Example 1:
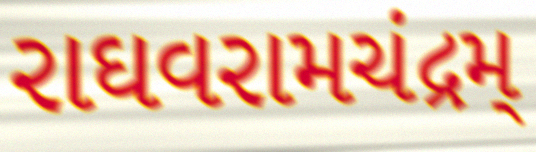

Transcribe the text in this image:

રાઘવરામચંદ્રમ્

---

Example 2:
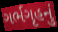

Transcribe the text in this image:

ગર્ભગૃહનું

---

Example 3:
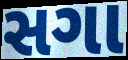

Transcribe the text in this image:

સગા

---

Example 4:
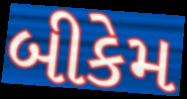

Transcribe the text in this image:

બીકેમ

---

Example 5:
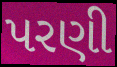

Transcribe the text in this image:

પરણી